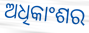
ଅଧିକାଂଶର